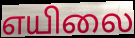
எயிலை